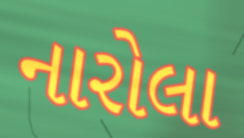
નારોલા